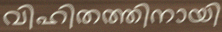
വിഹിതത്തിനായി